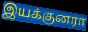
இயக்குனரா